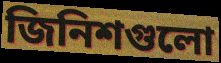
জিনিশগুলো